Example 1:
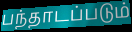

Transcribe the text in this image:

பந்தாடப்படும்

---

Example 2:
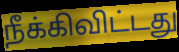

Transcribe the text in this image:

நீக்கிவிட்டது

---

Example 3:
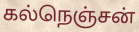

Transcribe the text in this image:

கல்நெஞ்சன்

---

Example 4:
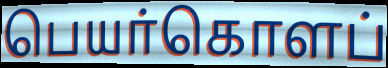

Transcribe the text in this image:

பெயர்கொளப்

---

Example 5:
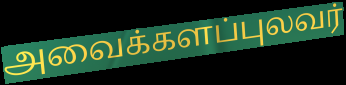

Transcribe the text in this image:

அவைக்களப்புலவர்